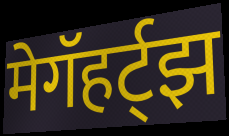
मेगॅहर्ट्झ